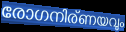
രോഗനിര്ണയവും